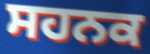
ਸਹਨਕ